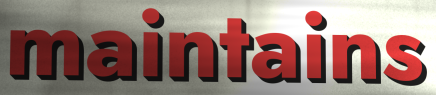
maintains